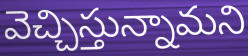
వెచ్చిస్తున్నామని